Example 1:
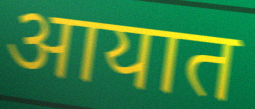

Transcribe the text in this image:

आयात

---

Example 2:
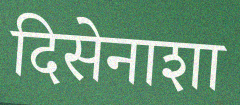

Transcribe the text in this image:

दिसेनाशा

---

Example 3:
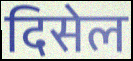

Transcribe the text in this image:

दिसेल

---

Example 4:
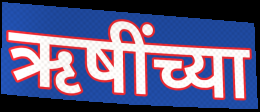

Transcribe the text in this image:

ऋषींच्या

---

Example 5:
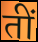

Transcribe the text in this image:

तीं